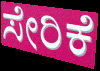
ಸೇರಿಕೆ